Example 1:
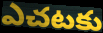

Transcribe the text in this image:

ఎచటకు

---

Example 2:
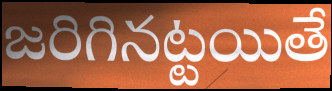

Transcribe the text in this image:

జరిగినట్టయితే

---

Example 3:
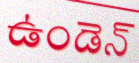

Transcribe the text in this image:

ఉండెన్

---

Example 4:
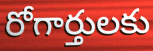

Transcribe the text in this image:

రోగార్తులకు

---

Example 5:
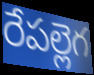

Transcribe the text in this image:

రేపల్లెగ